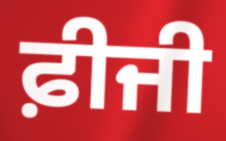
ਫ਼ੀਜੀ